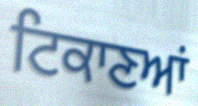
ਟਿਕਾਣਆਂ